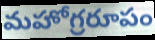
మహోగ్రరూపం